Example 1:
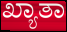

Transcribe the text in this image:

ಖ್ಯಾತಾ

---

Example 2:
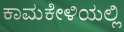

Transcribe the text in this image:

ಕಾಮಕೇಳಿಯಲ್ಲಿ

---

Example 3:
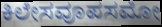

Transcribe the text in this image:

ಕಿಲೇಸವೂಪಸಮೋ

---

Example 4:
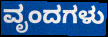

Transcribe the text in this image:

ವೃಂದಗಳು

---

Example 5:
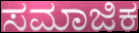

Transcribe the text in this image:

ಸಮಾಜಿಕ